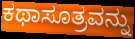
ಕಥಾಸೂತ್ರವನ್ನು